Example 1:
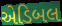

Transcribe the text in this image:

એડિબલ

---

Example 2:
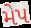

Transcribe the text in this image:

મેપ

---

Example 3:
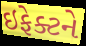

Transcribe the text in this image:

ઇફેક્ટને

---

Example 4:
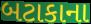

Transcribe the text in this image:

બટાકાના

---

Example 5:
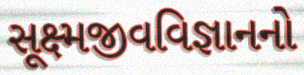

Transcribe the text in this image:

સૂક્ષ્મજીવવિજ્ઞાનનો